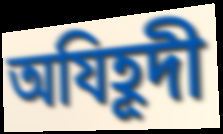
অযিহূদী